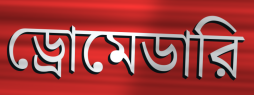
ড্রোমেডারি